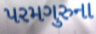
પરમગુરુના